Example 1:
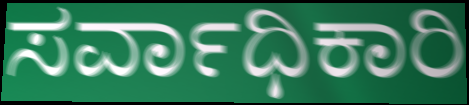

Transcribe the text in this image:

ಸರ್ವಾಧಿಕಾರಿ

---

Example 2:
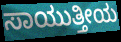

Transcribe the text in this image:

ಸಾಯುತ್ತೀಯ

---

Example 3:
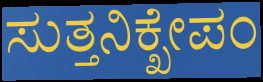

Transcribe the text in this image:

ಸುತ್ತನಿಕ್ಖೇಪಂ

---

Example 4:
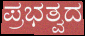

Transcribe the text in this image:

ಪ್ರಭತ್ವದ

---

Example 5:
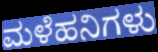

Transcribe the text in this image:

ಮಳೆಹನಿಗಳು